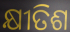
କ୍ଷୀତିଶ